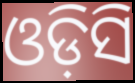
ଓଡ଼ିସି